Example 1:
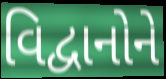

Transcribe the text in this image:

વિદ્વાનોને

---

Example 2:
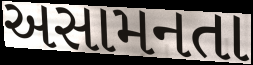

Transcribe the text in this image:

અસામનતા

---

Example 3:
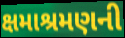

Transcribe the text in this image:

ક્ષમાશ્રમણની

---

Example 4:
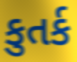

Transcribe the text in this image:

કુતર્ક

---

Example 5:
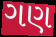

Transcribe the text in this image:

ગણ